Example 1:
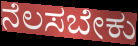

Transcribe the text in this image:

ನೆಲಸಬೇಕು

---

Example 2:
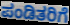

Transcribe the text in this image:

ಪಂಡಿತರಿಗೆ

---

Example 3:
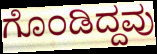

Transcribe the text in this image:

ಗೊಂಡಿದ್ದವು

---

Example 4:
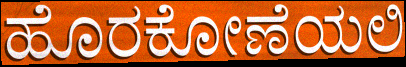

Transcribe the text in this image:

ಹೊರಕೋಣೆಯಲಿ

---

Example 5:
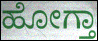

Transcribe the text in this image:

ಹೋಗ್ತಾ